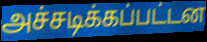
அச்சடிக்கப்பட்டன